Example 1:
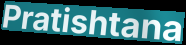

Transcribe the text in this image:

Pratishtana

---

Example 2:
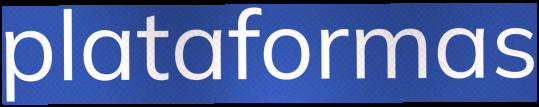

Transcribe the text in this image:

plataformas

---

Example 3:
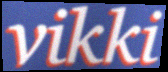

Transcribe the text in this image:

vikki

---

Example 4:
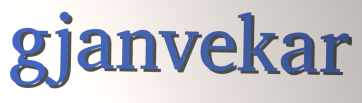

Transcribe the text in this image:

gjanvekar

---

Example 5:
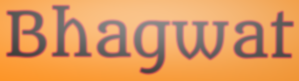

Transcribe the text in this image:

Bhagwat